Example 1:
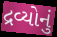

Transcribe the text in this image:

દ્રવ્યોનું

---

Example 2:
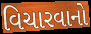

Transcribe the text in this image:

વિચારવાનો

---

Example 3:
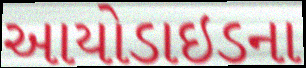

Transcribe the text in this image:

આયોડાઇડના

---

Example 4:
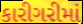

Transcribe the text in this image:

કારીગરીમાં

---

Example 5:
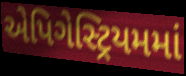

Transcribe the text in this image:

એપિગેસ્ટ્રિયમમાં